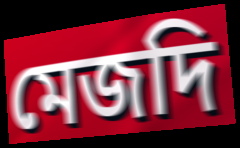
মেজদি